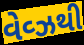
વેવ્ઝથી